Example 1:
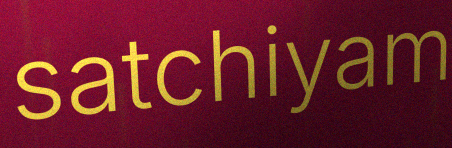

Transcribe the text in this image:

satchiyam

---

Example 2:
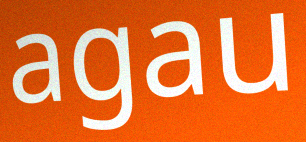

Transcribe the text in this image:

agau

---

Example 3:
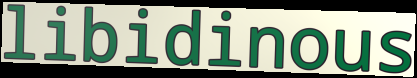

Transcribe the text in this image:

libidinous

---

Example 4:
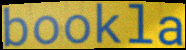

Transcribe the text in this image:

bookla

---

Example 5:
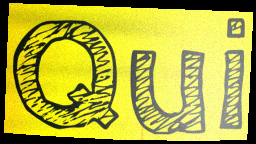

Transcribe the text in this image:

Qui